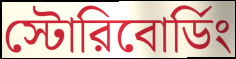
স্টোরিবোর্ডিং